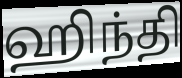
ஹிந்தி